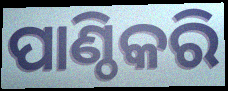
ପାଣ୍ଠିକରି